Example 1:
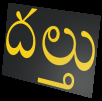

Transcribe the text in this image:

దల్తు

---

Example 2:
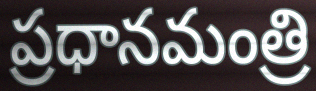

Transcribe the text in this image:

ప్రధానమంత్రి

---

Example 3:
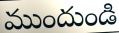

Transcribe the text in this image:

ముందుండి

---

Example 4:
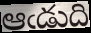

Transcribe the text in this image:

ఆఁడుది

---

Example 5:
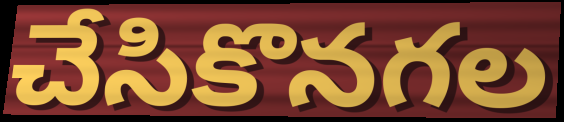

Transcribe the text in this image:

చేసికొనగల